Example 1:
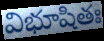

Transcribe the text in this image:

విభూషితః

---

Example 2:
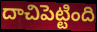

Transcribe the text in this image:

దాచిపెట్టింది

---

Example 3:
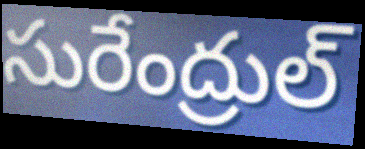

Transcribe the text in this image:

సురేంద్రుల్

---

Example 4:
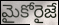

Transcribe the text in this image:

మైకోరైజే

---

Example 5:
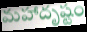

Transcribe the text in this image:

మహాదృష్టం